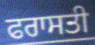
ਫਰਾਸਤੀ